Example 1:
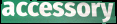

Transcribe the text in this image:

accessory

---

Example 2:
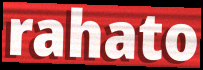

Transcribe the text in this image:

rahato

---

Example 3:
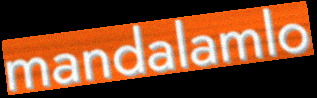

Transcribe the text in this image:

mandalamlo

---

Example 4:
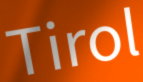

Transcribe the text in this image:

Tirol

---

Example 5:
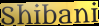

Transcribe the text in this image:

Shibani